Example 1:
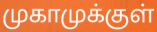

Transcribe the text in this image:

முகாமுக்குள்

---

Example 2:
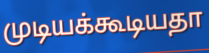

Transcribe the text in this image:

முடியக்கூடியதா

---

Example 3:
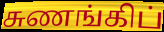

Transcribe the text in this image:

சுணங்கிப்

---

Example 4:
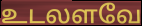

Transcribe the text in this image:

உடலளவே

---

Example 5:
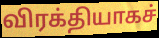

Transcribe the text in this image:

விரக்தியாகச்